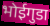
भोईगुडा